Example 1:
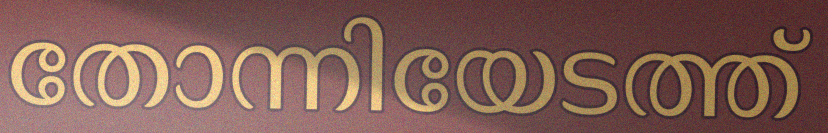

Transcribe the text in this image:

തോന്നിയേടത്ത്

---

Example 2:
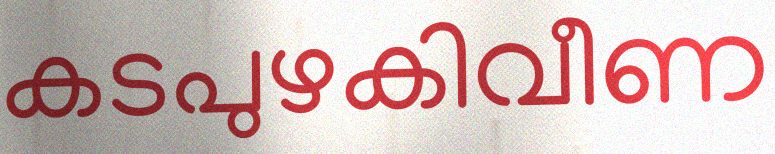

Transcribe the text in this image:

കടപുഴകിവീണ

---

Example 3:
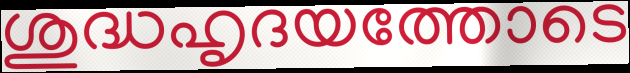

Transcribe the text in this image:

ശുദ്ധഹൃദയത്തോടെ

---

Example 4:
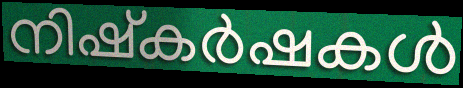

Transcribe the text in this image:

നിഷ്കർഷകൾ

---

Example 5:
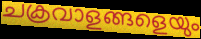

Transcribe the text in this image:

ചക്രവാളങ്ങളെയും